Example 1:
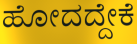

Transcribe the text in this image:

ಹೋದದ್ದೇಕೆ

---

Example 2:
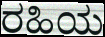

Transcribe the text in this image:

ರಹಿಯ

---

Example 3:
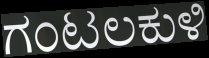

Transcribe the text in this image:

ಗಂಟಲಕುಳಿ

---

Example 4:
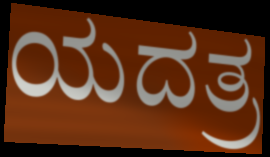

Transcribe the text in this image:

ಯದತ್ರ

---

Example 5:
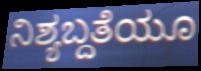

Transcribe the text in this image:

ನಿಶ್ಯಬ್ದತೆಯೂ